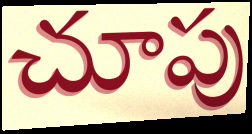
చూపు